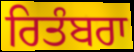
ਰਿਤੰਬਰਾ